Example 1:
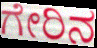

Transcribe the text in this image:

ಗೇರಿನ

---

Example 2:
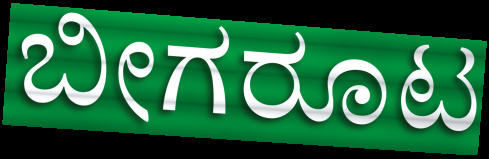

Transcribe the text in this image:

ಬೀಗರೂಟ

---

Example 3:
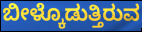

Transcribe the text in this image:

ಬೀಳ್ಕೊಡುತ್ತಿರುವ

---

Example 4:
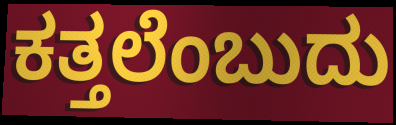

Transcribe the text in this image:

ಕತ್ತಲೆಂಬುದು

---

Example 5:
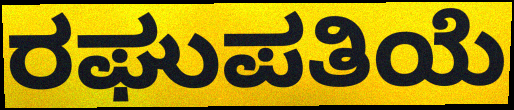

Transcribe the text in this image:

ರಘುಪತಿಯೆ